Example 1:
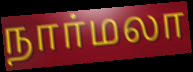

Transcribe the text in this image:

நார்மலா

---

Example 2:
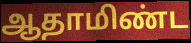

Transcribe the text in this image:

ஆதாமிண்ட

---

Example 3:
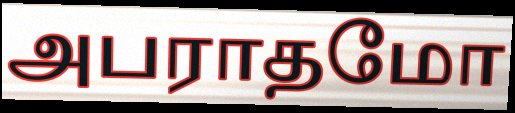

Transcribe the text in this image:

அபராதமோ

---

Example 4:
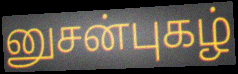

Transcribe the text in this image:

னுசன்புகழ்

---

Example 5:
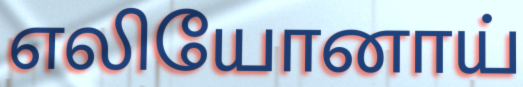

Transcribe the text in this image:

எலியோனாய்